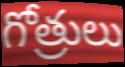
గోత్రులు